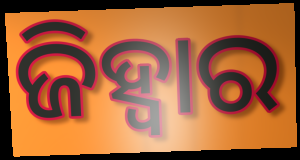
ଜିହ୍ଵାର